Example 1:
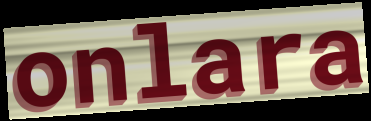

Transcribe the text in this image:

onlara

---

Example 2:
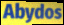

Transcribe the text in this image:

Abydos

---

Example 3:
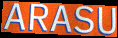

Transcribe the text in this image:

ARASU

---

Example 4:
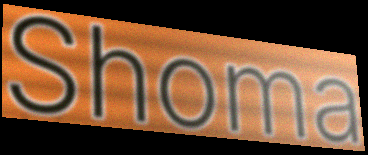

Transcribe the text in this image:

Shoma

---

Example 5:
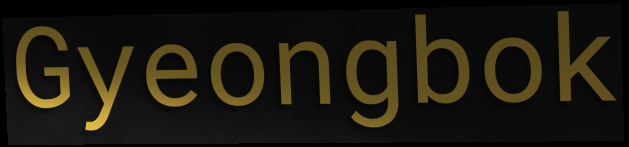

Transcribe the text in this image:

Gyeongbok